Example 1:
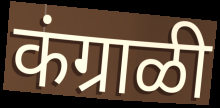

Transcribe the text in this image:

कंग्राळी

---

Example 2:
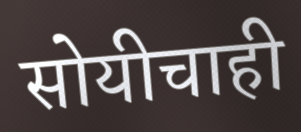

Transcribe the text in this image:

सोयीचाही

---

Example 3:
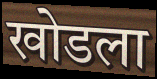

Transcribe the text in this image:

खोडला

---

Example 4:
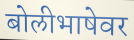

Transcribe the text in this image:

बोलीभाषेवर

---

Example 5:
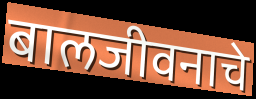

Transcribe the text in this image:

बालजीवनाचे